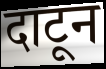
दाटून